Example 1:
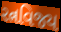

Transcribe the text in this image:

રત્નવિજ્ય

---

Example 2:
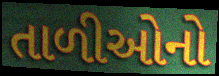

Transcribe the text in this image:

તાળીઓનો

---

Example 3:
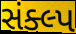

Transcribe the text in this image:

સંક્લ્પ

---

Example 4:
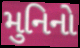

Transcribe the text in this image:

મુનિનો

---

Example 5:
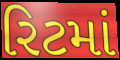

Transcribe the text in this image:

રિટમાં